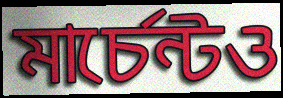
মার্চেন্টও